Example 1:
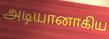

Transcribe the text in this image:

அடியானாகிய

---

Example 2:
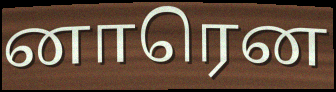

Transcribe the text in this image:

னாரென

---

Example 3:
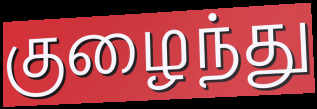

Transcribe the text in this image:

குழைந்து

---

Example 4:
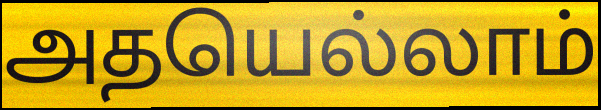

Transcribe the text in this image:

அதயெல்லாம்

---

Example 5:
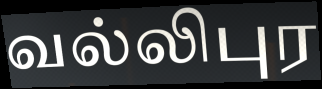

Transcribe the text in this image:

வல்லிபுர